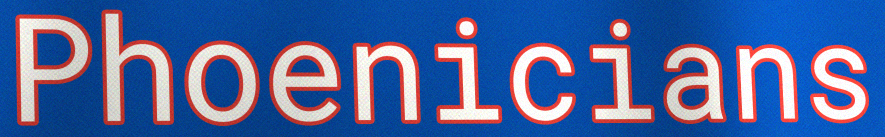
Phoenicians